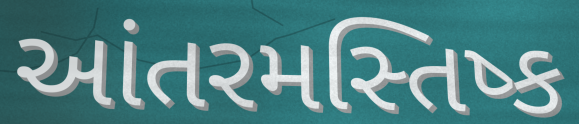
આંતરમસ્તિષ્ક